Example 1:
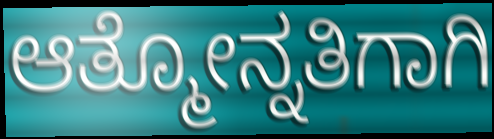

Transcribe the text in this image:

ಆತ್ಮೋನ್ನತಿಗಾಗಿ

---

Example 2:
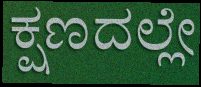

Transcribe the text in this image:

ಕ್ಷಣದಲ್ಲೇ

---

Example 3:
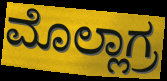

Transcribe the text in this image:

ಮೊಲ್ಲಾಗ್ರ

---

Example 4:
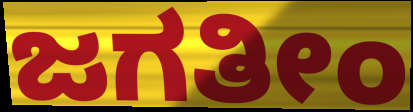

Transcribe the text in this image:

ಜಗತೀಂ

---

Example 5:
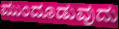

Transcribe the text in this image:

ಮುಂದೂಡುವುದು